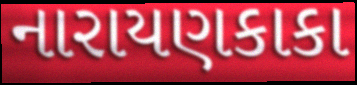
નારાયણકાકા